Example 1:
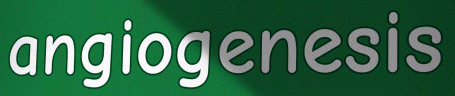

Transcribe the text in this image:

angiogenesis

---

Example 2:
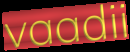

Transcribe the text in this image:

vaadii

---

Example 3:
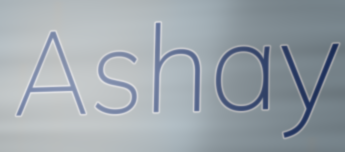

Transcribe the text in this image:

Ashay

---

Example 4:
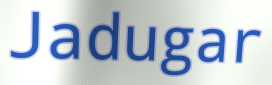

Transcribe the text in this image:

Jadugar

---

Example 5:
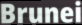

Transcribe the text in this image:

Brunei